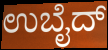
ಉಬೈದ್